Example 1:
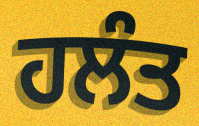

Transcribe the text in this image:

ਹਲੰਤ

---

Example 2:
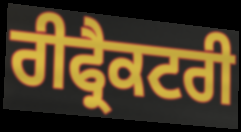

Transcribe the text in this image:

ਰੀਫ੍ਰੈਕਟਰੀ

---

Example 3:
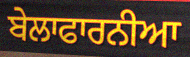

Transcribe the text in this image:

ਬੇਲਾਫਾਰਨੀਆ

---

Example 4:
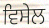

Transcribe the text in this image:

ਵਿਸੇਲ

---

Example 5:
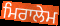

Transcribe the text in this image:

ਮਿਰਾਲੇਮ